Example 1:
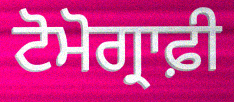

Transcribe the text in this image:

ਟੋਮੋਗ੍ਰਾਫ਼ੀ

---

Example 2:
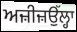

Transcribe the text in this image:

ਅਜ਼ੀਜ਼ਉੱਲ੍ਹਾ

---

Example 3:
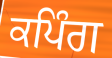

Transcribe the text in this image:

ਕਪਿੰਗ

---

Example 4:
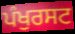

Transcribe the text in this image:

ਪੰਖੁਰਸਟ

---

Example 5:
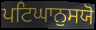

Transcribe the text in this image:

ਪਟਿਘਾਨੁਸਯੋ